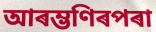
আৰম্ভণিৰপৰা